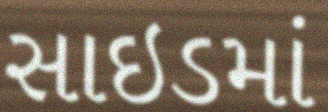
સાઇડમાં